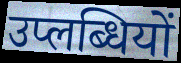
उप्लब्धियों